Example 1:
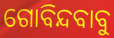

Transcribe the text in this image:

ଗୋବିନ୍ଦବାବୁ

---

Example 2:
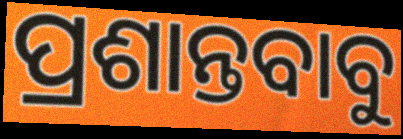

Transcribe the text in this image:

ପ୍ରଶାନ୍ତବାବୁ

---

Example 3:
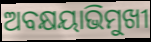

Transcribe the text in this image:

ଅବକ୍ଷୟାଭିମୁଖୀ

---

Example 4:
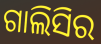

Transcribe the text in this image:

ଗାଲିସିର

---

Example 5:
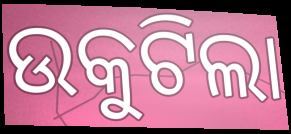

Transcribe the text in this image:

ଉକୁଟିଲା